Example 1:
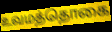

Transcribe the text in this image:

உவமத்தொகை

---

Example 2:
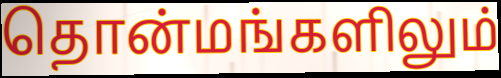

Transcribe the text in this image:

தொன்மங்களிலும்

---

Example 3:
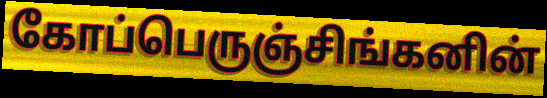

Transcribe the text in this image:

கோப்பெருஞ்சிங்கனின்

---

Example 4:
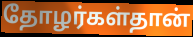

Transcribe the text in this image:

தோழர்கள்தான்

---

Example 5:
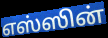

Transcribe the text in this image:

எஸ்ஸின்